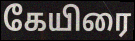
கேயிரை